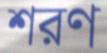
শরণ